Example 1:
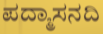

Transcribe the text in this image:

ಪದ್ಮಾಸನದಿ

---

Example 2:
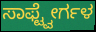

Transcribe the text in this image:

ಸಾಫ್ಟ್ವೇರ್ಗಳ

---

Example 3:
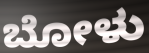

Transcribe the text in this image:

ಬೋಳು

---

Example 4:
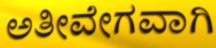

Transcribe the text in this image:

ಅತೀವೇಗವಾಗಿ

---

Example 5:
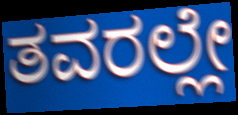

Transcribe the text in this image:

ತವರಲ್ಲೇ